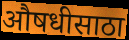
औषधीसाठा